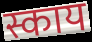
स्काय